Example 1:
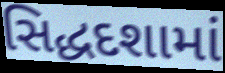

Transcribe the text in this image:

સિદ્ધદશામાં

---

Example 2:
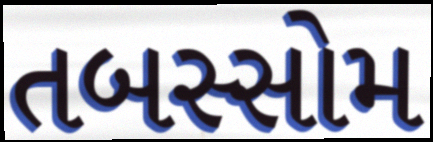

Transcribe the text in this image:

તબસ્સોમ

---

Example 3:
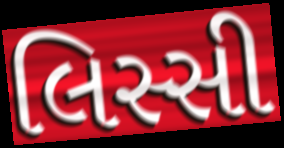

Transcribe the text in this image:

લિસ્સી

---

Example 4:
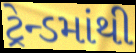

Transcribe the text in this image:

ટ્રેન્ડમાંથી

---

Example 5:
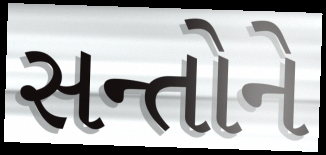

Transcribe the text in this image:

સન્તોને